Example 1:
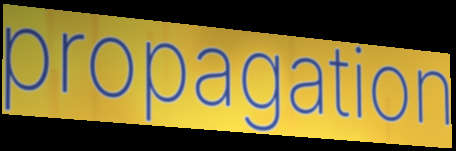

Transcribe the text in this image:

propagation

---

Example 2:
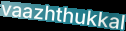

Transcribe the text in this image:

vaazhthukkal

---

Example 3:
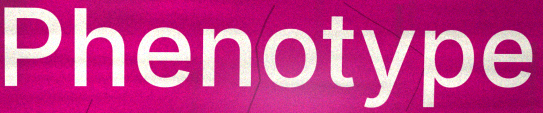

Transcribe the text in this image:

Phenotype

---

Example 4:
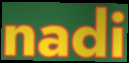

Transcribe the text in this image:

nadi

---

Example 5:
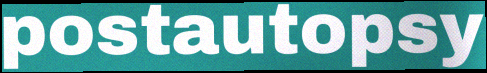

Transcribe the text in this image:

postautopsy